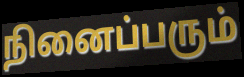
நினைப்பரும்